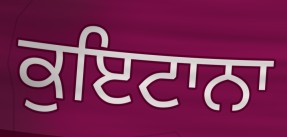
ਕੁਇਟਾਨਾ